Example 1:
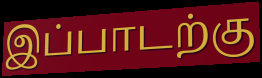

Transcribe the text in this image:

இப்பாடற்கு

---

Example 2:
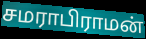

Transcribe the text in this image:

சமராபிராமன்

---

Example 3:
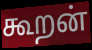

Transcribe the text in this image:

கூறன்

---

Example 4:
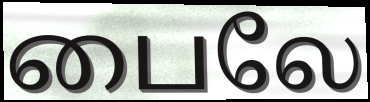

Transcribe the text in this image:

பைலே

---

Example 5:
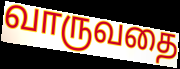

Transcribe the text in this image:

வாருவதை